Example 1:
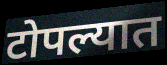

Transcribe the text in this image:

टोपल्यात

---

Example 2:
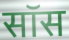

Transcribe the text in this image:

सॉस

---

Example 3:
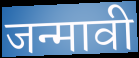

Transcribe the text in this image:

जन्मावी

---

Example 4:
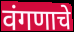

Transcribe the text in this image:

वंगणाचे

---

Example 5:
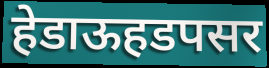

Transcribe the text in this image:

हेडाऊहडपसर